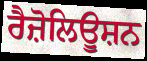
ਰੈਜ਼ੋਲਿਊਸ਼ਨ